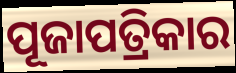
ପୂଜାପତ୍ରିକାର